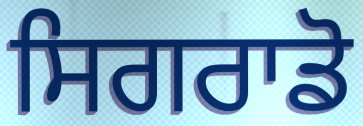
ਸਿਗਰਾਡੋ